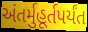
અંતર્મુહૂર્તપર્યંત